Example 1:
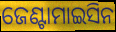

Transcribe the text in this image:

ଜେଣ୍ଟାମାଇସିନ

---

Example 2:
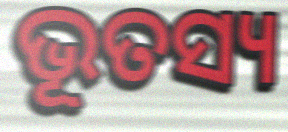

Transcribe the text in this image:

ଭୂତସ୍ୟ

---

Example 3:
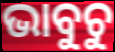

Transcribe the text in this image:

ଭାବୁଚୁ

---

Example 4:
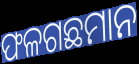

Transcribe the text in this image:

ଫଳଗଛମାନ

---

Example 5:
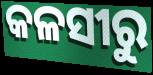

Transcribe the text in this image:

କଳସୀରୁ